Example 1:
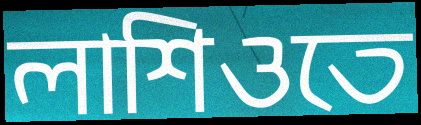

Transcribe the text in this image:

লাশিওতে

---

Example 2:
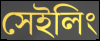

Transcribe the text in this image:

সেইলিং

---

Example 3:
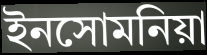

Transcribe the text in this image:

ইনসোমনিয়া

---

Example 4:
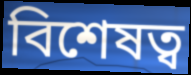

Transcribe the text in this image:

বিশেষত্ব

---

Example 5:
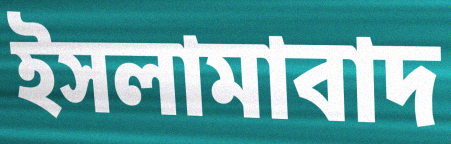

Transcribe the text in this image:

ইসলামাবাদ